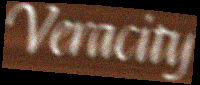
Veracity